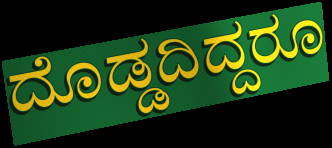
ದೊಡ್ಡದಿದ್ದರೂ